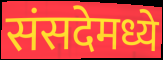
संसदेमध्ये